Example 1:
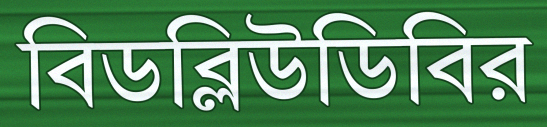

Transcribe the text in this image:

বিডব্লিউডিবির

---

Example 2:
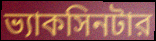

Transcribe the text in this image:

ভ্যাকসিনটার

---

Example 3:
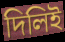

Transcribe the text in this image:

দিলিই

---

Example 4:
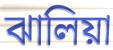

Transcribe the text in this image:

ঝালিয়া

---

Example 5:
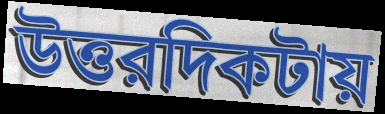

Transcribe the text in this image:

উত্তরদিকটায়